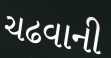
ચઢવાની